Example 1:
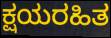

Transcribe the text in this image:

ಕ್ಷಯರಹಿತ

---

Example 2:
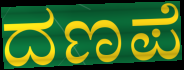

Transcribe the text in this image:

ದಣಪೆ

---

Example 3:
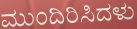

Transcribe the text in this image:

ಮುಂದಿರಿಸಿದಳು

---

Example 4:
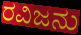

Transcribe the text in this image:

ರವಿಜನು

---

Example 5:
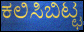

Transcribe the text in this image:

ಕಲಿಸಿಬಿಟ್ಟ